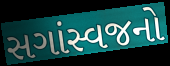
સગાંસ્વજનો